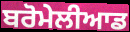
ਬਰੋਮੇਲੀਆਡ